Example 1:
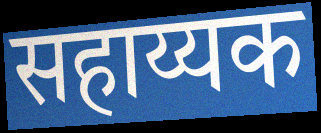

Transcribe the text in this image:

सहाय्यक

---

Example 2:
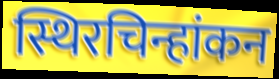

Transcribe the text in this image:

स्थिरचिन्हांकन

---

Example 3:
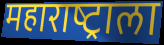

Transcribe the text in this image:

महाराष्ट्राला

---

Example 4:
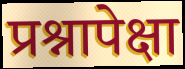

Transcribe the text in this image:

प्रश्नापेक्षा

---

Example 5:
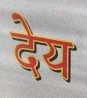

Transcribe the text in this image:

देय